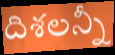
దిశలన్నీ